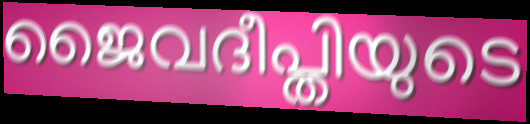
ജൈവദീപ്തിയുടെ